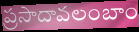
ప్రసాదావలంబాం